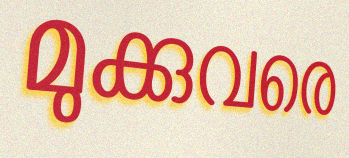
മുക്കുവരെ